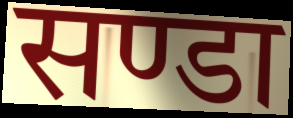
सण्डा